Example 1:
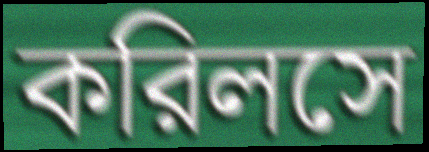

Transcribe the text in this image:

করিলসে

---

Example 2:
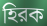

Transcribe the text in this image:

হিরক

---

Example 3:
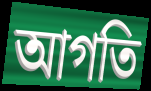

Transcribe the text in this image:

আগতি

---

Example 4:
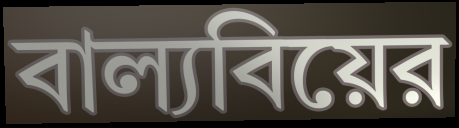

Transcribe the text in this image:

বাল্যবিয়ের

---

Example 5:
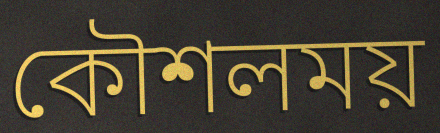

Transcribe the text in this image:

কৌশলময়